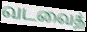
வடவைத்